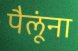
पैलूंना